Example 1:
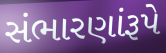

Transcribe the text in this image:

સંભારણાંરૂપે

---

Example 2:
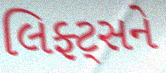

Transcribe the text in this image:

લિફ્ટ્સને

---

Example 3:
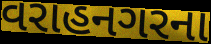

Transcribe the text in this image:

વરાહનગરના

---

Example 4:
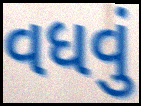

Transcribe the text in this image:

વધવું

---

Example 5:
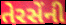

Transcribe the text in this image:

તેરસેંની